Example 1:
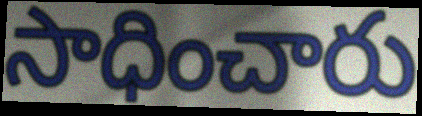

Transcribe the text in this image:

సాధించారు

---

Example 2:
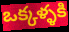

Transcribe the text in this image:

ఒక్కళ్ళకి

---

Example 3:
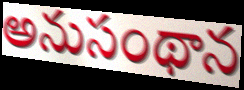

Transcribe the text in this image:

అనుసంథాన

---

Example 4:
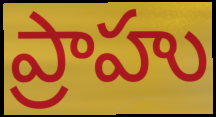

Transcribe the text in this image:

ప్రాహు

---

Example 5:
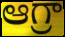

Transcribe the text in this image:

ఆగ్రా